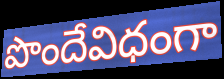
పొందేవిధంగా